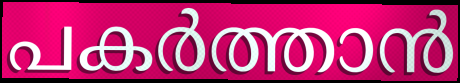
പകർത്താൻ